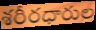
శరీరధారుల